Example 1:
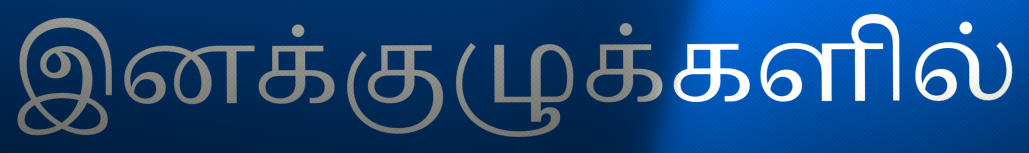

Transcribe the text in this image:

இனக்குழுக்களில்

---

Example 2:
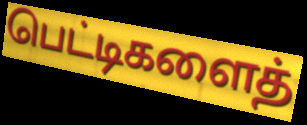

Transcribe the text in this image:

பெட்டிகளைத்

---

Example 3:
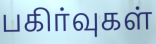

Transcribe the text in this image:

பகிர்வுகள்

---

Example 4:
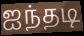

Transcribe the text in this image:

ஐந்தடி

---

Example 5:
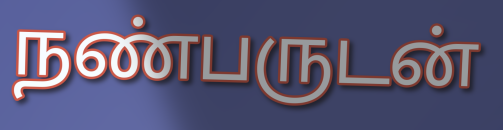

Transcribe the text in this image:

நண்பருடன்